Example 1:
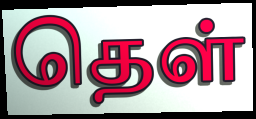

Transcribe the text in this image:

தெள்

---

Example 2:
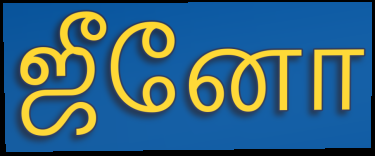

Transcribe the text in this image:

ஜீனோ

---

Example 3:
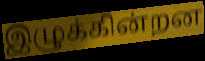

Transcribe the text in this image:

இழுக்கின்றன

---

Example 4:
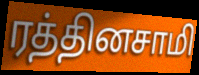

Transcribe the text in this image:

ரத்தினசாமி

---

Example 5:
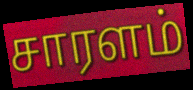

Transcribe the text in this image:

சாரளம்